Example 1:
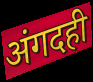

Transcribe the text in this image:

अंगदही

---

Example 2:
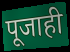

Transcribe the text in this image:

पूजाही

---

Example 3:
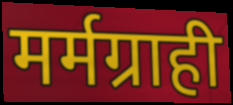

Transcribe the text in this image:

मर्मग्राही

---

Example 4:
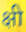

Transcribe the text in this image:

क्षी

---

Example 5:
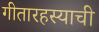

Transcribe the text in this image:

गीतारहस्याची